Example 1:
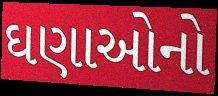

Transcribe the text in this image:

ઘણાઓનો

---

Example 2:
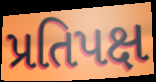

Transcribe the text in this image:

પ્રતિપક્ષ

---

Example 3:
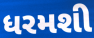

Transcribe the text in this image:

ધરમશી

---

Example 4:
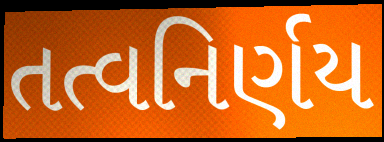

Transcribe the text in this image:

તત્વનિર્ણય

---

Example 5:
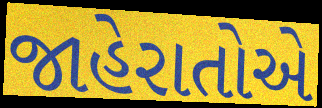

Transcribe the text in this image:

જાહેરાતોએ